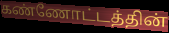
கண்ணோட்டத்தின்